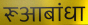
रूआबांधा